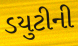
ડયુટીની